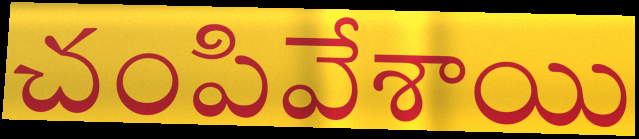
చంపివేశాయి